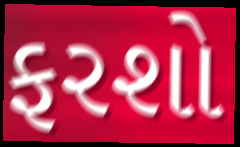
ફરશો